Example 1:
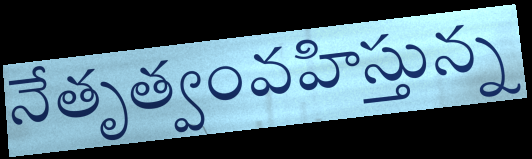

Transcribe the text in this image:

నేతృత్వంవహిస్తున్న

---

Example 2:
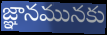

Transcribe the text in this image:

జ్ఞానమునకు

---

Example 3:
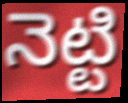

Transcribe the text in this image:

నెట్టి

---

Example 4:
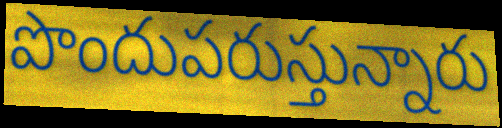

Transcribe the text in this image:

పొందుపరుస్తున్నారు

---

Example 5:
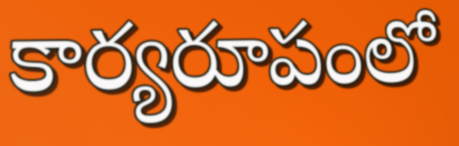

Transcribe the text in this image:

కార్యరూపంలో